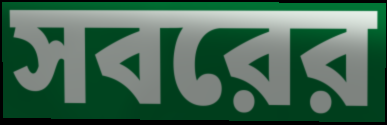
সবরের